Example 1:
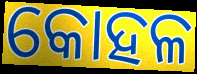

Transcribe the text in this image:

କୋହଳ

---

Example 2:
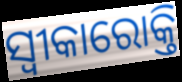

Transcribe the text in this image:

ସ୍ୱୀକାରୋକ୍ତି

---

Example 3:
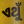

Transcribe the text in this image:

ଏଥୁଁ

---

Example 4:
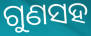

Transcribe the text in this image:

ଗୁଣସହ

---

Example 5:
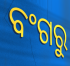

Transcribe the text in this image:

ବଂଗରୁ